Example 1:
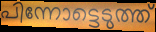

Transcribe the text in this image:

പിന്നോട്ടെടുത്ത്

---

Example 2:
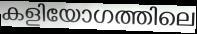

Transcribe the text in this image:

കളിയോഗത്തിലെ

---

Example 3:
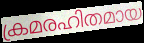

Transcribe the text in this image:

ക്രമരഹിതമായ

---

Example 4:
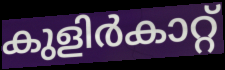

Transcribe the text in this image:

കുളിർകാറ്റ്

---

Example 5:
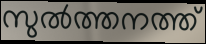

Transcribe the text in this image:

സുൽത്തനത്ത്